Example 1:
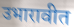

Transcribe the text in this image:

उभारावीत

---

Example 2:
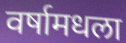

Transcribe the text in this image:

वर्षामधला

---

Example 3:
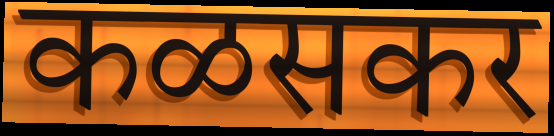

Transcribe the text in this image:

कळसकर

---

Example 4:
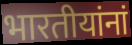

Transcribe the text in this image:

भारतीयांनां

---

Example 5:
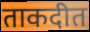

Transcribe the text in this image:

ताकदीत